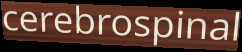
cerebrospinal